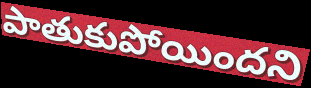
పాతుకుపోయిందని